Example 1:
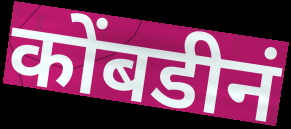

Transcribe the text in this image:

कोंबडीनं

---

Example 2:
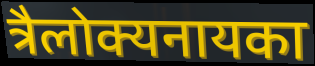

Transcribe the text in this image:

त्रैलोक्यनायका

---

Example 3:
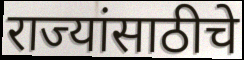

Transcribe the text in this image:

राज्यांसाठीचे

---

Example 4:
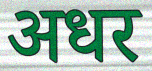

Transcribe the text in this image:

अधर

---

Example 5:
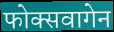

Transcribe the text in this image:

फोक्सवागेन